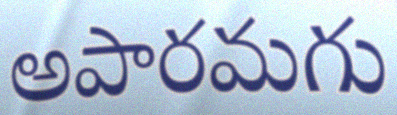
అపారమగు